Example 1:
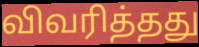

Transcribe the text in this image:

விவரித்தது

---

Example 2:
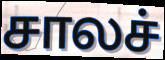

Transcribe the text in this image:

சாலச்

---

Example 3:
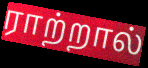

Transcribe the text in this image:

ராற்றால்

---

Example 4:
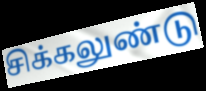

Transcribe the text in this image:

சிக்கலுண்டு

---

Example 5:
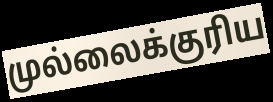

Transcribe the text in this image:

முல்லைக்குரிய